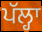
ਪੱਲ੍ਹਾ